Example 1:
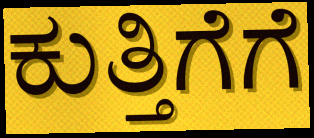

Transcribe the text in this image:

ಕುತ್ತಿಗೆಗೆ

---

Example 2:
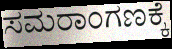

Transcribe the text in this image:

ಸಮರಾಂಗಣಕ್ಕೆ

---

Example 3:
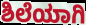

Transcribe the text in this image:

ಶಿಲೆಯಾಗಿ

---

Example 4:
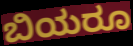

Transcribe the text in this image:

ಬಿಯರೂ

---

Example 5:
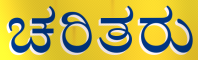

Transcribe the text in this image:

ಚರಿತರು